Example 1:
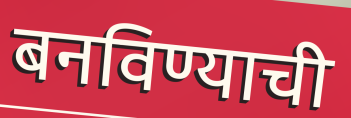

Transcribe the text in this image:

बनविण्याची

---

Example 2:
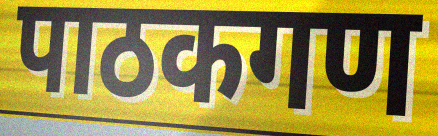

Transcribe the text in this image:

पाठकगण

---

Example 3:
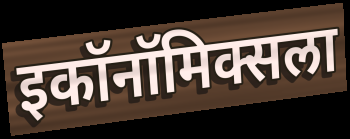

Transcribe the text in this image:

इकॉनॉमिक्सला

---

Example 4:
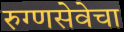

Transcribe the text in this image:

रुग्णसेवेचा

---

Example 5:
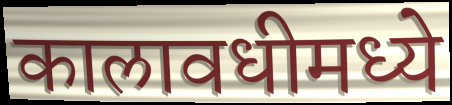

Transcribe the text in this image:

कालावधीमध्ये